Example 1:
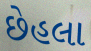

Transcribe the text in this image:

છેહલા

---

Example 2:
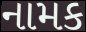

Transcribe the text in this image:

નામક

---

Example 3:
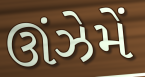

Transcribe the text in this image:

ઊંઝેમેં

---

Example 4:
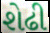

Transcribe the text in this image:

શેઢી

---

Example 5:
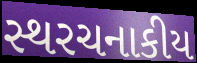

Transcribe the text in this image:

સ્થરચનાકીય